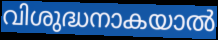
വിശുദ്ധനാകയാൽ